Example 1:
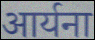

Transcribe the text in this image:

आर्यना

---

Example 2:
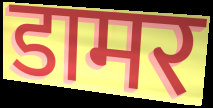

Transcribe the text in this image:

डामर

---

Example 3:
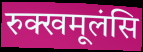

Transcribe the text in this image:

रुक्खमूलंसि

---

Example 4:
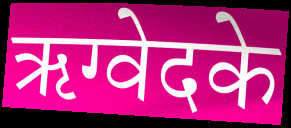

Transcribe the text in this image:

ऋग्वेदके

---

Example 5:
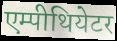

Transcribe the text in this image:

एम्पीथियेटर